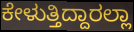
ಕೇಳುತ್ತಿದ್ದಾರಲ್ಲಾ